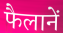
फैलानें